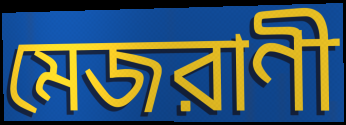
মেজরাণী